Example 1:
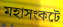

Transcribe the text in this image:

মহাসংকটে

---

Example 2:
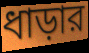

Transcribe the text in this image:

ধাড়ার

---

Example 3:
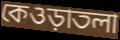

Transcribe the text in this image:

কেওড়াতলা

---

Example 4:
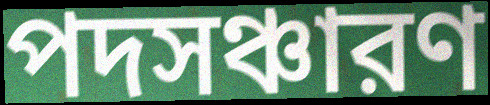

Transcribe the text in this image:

পদসঞ্চারণ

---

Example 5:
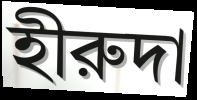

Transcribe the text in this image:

হীরুদা